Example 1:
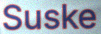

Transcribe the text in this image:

Suske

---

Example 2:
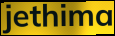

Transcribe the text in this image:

jethima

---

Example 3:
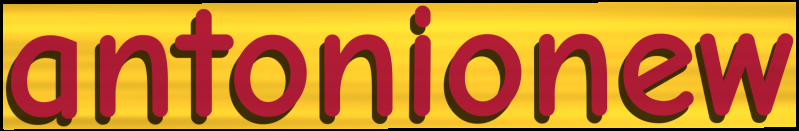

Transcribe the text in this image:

antonionew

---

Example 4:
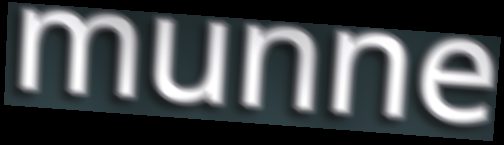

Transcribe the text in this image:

munne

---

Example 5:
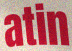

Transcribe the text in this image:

atin